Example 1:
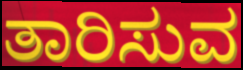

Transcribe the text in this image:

ತಾರಿಸುವ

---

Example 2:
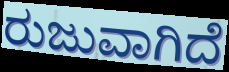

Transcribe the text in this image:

ರುಜುವಾಗಿದೆ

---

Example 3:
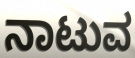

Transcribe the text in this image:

ನಾಟುವ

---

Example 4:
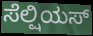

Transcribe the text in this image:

ಸೆಲ್ಷಿಯಸ್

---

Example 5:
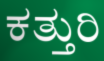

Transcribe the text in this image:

ಕತ್ತುರಿ